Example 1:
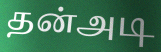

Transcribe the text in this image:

தன்அடி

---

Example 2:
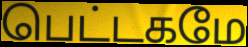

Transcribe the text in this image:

பெட்டகமே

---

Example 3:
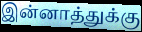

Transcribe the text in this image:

இன்னாத்துக்கு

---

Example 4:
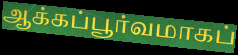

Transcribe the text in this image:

ஆக்கப்பூர்வமாகப்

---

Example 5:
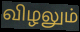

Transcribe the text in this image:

விழலும்